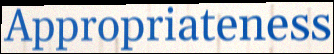
Appropriateness